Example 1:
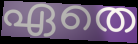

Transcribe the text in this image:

ഏതെ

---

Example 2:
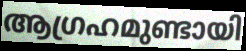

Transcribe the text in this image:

ആഗ്രഹമുണ്ടായി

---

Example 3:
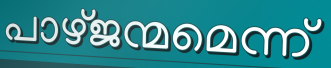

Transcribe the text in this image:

പാഴ്ജന്മമെന്ന്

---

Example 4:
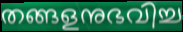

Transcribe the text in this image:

തങ്ങളനുഭവിച്ച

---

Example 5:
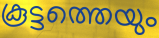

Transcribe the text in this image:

കൂട്ടത്തെയും